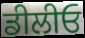
ਡੀਲੀਓ